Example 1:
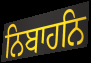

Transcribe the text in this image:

ਨਿਬਾਹਨਿ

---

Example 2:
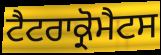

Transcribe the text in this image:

ਟੈਟਰਾਕ੍ਰੋਮੈਟਸ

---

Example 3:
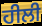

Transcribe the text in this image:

ਹੀਲੀ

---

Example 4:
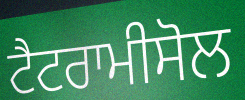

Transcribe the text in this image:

ਟੈਟਰਾਮੀਸੋਲ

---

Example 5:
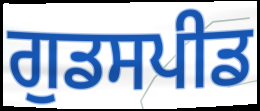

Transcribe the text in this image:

ਗੁਡਸਪੀਡ